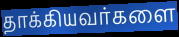
தாக்கியவர்களை